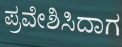
ಪ್ರವೇಶಿಸಿದಾಗ